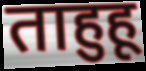
ताहुहू